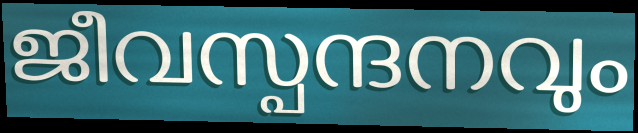
ജീവസ്പന്ദനവും